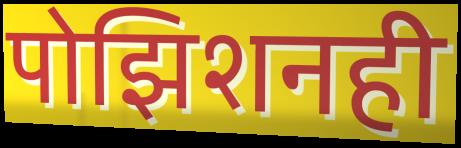
पोझिशनही